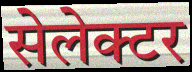
सेलेक्‍टर